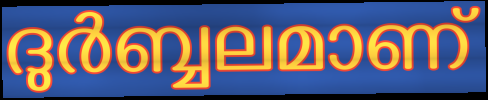
ദുർബ്ബലമാണ്